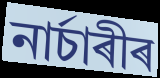
নাৰ্চাৰীৰ